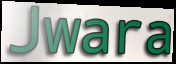
Jwara